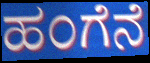
ಹಂಗೆನೆ